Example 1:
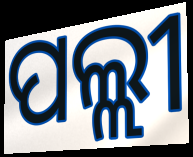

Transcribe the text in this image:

ପଲ୍ଲୀ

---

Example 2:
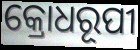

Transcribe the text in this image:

କ୍ରୋଧରୂପୀ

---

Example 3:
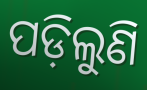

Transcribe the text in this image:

ପଡ଼ିଲୁଣି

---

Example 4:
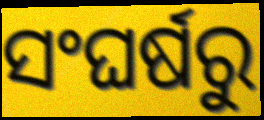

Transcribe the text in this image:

ସଂଘର୍ଷରୁ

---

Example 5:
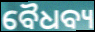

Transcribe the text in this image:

ବୈଧବ୍ୟ